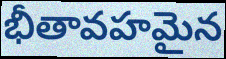
భీతావహమైన